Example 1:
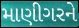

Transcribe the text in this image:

માણીગરને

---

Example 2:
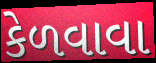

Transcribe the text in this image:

કેળવાવા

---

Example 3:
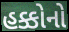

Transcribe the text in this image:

હક્કોનો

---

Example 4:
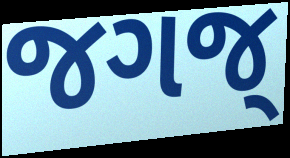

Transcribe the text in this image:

જગજ્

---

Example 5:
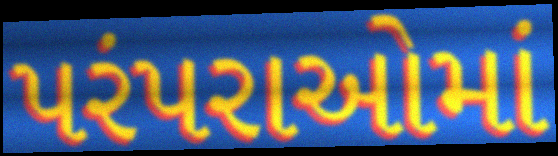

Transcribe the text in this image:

પરંપરાઓમાં